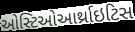
ઓસ્ટિઓઆર્થ્રાઇટિસ